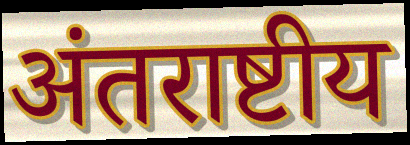
अंतराष्टीय